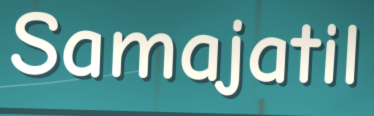
Samajatil